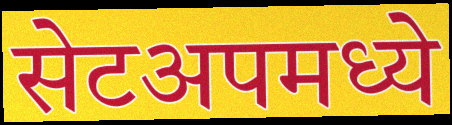
सेटअपमध्ये